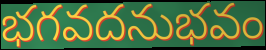
భగవదనుభవం